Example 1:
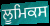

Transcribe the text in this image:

ਲੂਮਿਕਸ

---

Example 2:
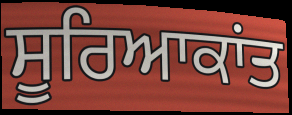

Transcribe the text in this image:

ਸੂਰਿਆਕਾਂਤ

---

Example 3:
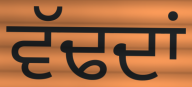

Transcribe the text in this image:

ਵੱਢਦਾਂ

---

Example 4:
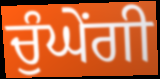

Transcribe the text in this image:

ਚੁੰਘੇਂਗੀ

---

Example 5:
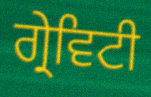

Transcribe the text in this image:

ਗ੍ਰੇਵਿਟੀ